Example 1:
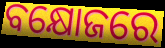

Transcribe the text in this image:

ବକ୍ଷୋଜରେ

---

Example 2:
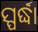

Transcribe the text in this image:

ସ୍ପର୍ଦ୍ଧା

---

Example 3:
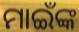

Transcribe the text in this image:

ମାଇଁଙ୍କ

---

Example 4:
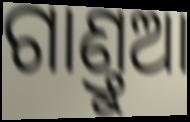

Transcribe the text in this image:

ଗାଣ୍ତୁଆ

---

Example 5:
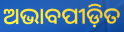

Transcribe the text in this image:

ଅଭାବପୀଡ଼ିତ